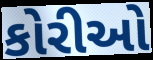
કોરીઓ